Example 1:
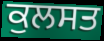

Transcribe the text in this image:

ਕੁਲਸਤ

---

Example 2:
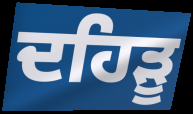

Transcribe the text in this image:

ਦਹਿੜੂ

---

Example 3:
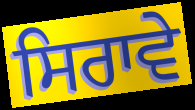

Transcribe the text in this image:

ਸਿਰਾਵੇ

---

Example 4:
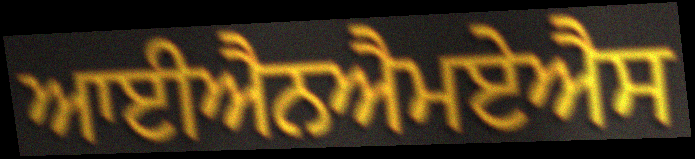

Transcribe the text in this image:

ਆਈਐਨਐਮਏਐਸ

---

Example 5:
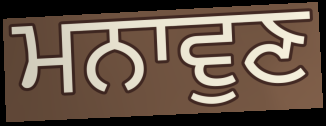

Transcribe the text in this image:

ਮਨਾਵੁਣ